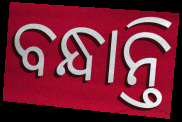
ବନ୍ଧାନ୍ତି